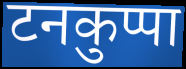
टनकुप्पा